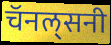
चॅनल्सनी